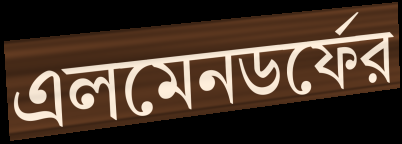
এলমেনডর্ফের